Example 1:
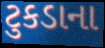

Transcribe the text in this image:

ટુકડાના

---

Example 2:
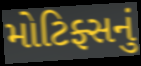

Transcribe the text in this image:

મોટિફ્સનું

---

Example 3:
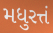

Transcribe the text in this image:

મધુરત્તં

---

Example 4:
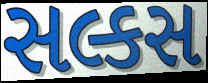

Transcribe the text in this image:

સલ્કસ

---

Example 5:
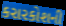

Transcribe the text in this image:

કરારકોશની